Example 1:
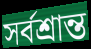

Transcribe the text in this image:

সৰ্বশ্ৰান্ত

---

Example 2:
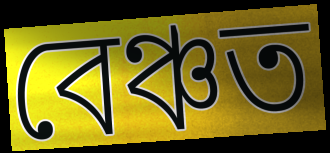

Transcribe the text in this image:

বেঞ্চত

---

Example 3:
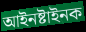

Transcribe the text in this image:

আইনষ্টাইনক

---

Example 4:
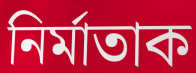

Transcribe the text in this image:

নিৰ্মাতাক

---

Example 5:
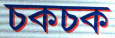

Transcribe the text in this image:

চকচক